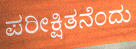
ಪರೀಕ್ಷಿತನೆಂದು